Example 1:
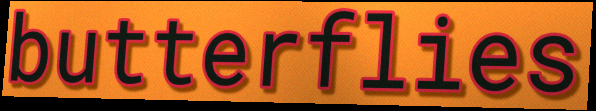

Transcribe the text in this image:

butterflies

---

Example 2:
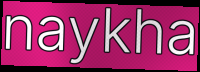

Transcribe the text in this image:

naykha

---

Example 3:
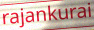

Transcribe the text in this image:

rajankurai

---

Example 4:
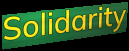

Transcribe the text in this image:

Solidarity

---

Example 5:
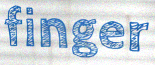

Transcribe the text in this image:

finger